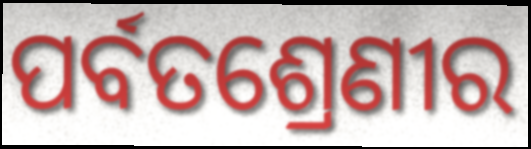
ପର୍ବତଶ୍ରେଣୀର